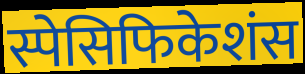
स्पेसिफिकेशंस